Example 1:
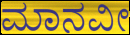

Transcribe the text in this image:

ಮಾನವೀ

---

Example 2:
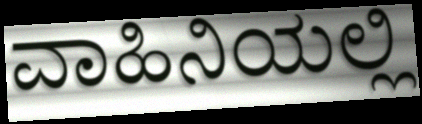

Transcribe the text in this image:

ವಾಹಿನಿಯಲ್ಲಿ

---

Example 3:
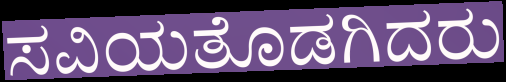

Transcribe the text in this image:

ಸವಿಯತೊಡಗಿದರು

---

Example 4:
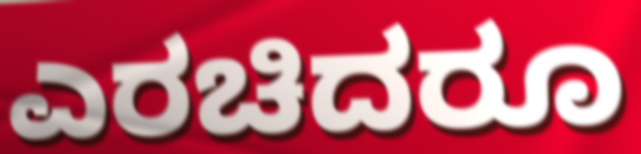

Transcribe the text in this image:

ಎರಚಿದರೂ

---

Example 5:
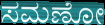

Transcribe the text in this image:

ಸಮಣೋ